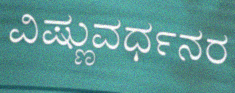
ವಿಷ್ಣುವರ್ಧನರ